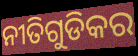
ନୀତିଗୁଡିକର